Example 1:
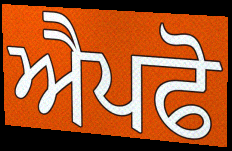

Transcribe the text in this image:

ਐਪਫੋ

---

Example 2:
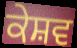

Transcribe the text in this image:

ਕੇਸ਼ਵ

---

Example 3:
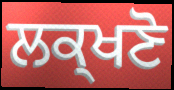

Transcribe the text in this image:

ਲਕ੍ਖਣੋ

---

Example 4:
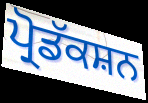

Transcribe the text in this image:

ਪ੍ਰੋਡੱਕਸ਼ਨ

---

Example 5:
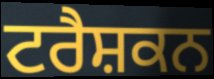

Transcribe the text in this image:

ਟਰੈਸ਼ਕਨ